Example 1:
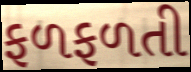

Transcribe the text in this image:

ફળફળતી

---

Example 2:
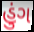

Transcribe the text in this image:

હુંગ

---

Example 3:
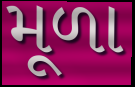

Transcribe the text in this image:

મૂળા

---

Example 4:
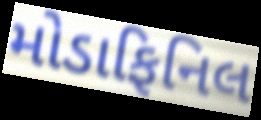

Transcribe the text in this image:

મોડાફિનિલ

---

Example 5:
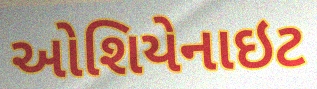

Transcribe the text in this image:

ઓશિયેનાઇટ